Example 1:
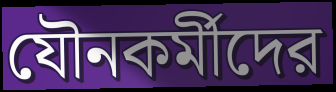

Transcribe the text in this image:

যৌনকর্মীদের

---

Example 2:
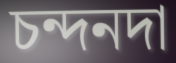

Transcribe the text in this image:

চন্দনদা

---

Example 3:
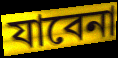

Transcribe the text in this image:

যাবেনা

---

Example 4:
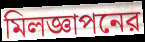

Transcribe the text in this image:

মিলজ্ঞাপনের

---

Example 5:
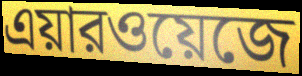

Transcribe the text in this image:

এয়ারওয়েজে